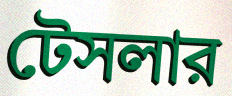
টেসলার